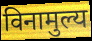
विनामुल्य